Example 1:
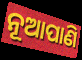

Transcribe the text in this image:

ନୂଆପାଣି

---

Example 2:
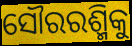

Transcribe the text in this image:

ସୌରରଶ୍ମିକୁ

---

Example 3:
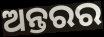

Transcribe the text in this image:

ଅନ୍ତରର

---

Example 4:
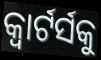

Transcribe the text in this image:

କ୍ୱାର୍ଟର୍ସକୁ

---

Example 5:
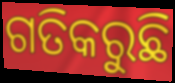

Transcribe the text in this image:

ଗତିକରୁଛି